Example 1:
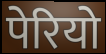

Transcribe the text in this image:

पेरियो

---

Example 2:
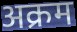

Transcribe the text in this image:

अक्रम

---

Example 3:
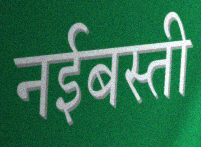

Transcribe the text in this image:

नईबस्ती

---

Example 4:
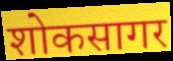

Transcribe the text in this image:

शोकसागर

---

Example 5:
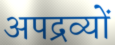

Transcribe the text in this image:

अपद्रव्यों